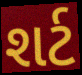
શર્ટ